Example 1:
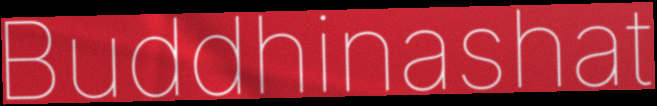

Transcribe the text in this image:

Buddhinashat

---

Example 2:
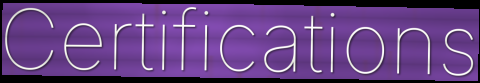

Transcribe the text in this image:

Certifications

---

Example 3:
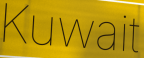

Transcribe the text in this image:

Kuwait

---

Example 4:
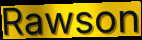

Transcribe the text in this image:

Rawson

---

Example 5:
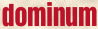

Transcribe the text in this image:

dominum